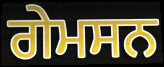
ਗੇਮਸਨ